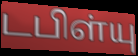
டபிள்யு